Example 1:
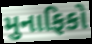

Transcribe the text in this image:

મુનાફિકો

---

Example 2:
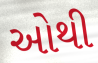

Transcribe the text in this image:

ઓથી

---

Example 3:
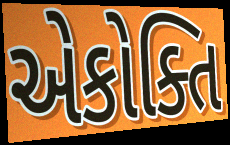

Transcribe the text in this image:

એકોક્તિ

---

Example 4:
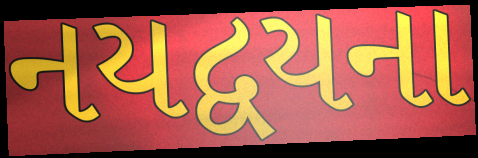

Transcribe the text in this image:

નયદ્વયના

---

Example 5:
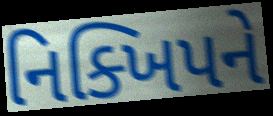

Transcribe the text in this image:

નિક્ખિપને